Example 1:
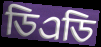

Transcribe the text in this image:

ডিএডি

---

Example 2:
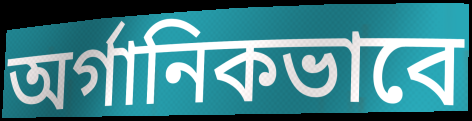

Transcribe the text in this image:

অর্গানিকভাবে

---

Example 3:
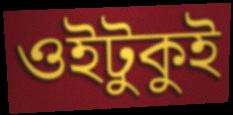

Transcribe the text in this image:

ওইটুকুই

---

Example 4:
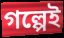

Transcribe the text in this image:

গল্পেই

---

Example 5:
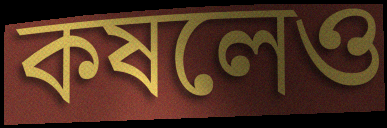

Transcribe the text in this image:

কষলেও